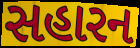
સહારન